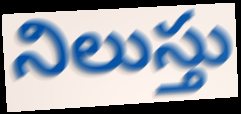
నిలుస్తు